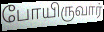
போயிருவார்